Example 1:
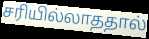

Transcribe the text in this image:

சரியில்லாததால்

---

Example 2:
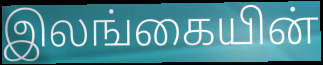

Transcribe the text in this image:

இலங்கையின்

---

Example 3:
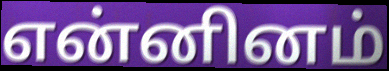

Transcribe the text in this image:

என்னினம்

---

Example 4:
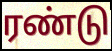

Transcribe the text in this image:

ரண்டு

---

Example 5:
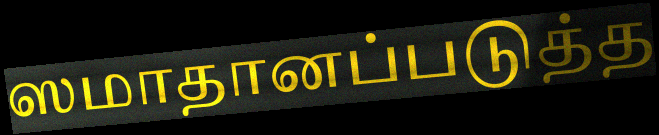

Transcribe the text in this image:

ஸமாதானப்படுத்த